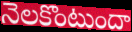
నెలకొంటుందా